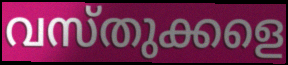
വസ്തുക്കളെ